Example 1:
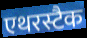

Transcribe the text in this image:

एथरस्टैक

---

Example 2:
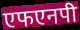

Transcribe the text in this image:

एफएनपी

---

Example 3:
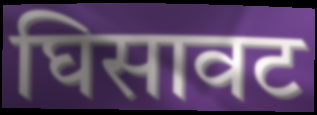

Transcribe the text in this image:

घिसावट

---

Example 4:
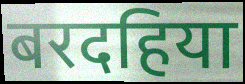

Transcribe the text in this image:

बरदहिया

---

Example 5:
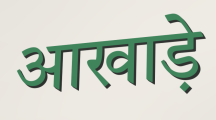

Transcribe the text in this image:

आखाड़े